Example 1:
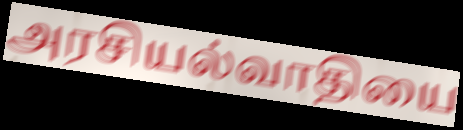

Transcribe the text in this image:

அரசியல்வாதியை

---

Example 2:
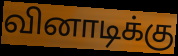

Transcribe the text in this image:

வினாடிக்கு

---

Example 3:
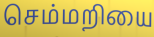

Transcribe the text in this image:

செம்மறியை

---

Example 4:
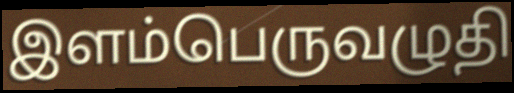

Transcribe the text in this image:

இளம்பெருவழுதி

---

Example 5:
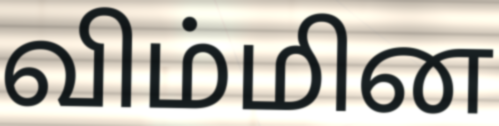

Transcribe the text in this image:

விம்மின